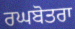
ਰਘਬੋਤਰਾ